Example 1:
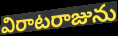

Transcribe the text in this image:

విరాటరాజును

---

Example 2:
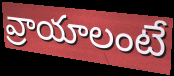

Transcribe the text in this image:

వ్రాయాలంటే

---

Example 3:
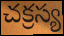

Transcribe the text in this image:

చక్రస్య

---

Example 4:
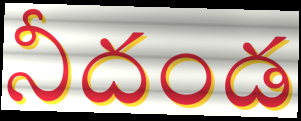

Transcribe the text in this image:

నీదండ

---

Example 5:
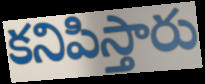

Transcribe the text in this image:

కనిపిస్తారు